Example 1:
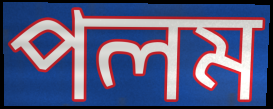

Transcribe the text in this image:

পলম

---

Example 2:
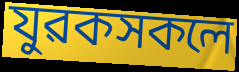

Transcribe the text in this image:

যুৱকসকলে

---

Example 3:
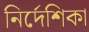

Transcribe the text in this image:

নিৰ্দেশিকা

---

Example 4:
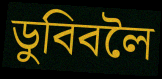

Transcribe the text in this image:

ডুবিবলৈ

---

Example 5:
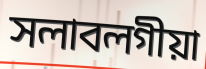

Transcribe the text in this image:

সলাবলগীয়া